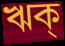
ঋক্